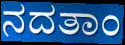
ನದತಾಂ